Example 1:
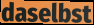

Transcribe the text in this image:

daselbst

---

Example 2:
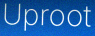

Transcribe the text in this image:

Uproot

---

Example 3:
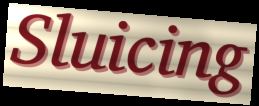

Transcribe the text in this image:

Sluicing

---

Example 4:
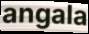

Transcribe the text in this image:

angala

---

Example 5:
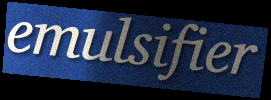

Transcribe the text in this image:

emulsifier